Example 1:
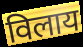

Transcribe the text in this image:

विलाय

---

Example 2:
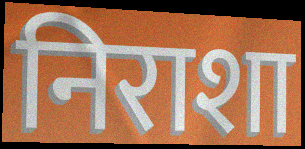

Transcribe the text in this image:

निराशा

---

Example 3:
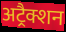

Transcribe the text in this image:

अट्रैक्शन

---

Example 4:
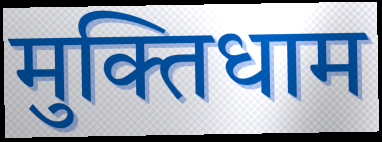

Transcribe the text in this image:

मुक्तिधाम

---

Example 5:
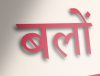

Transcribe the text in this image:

बलों